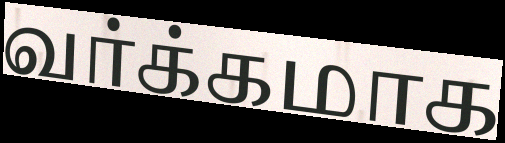
வர்க்கமாக